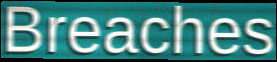
Breaches